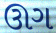
ઊગ